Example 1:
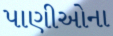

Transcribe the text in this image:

પાણીઓના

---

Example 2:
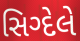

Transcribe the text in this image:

સિગ્દેલે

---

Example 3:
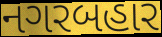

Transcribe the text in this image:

નગરબહાર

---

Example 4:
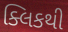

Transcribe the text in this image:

ક્લિકથી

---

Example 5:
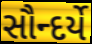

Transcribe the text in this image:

સૌન્દર્યે